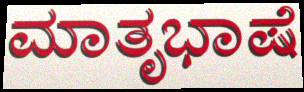
ಮಾತೃಭಾಷೆ